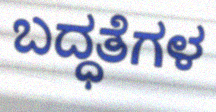
ಬದ್ಧತೆಗಳ